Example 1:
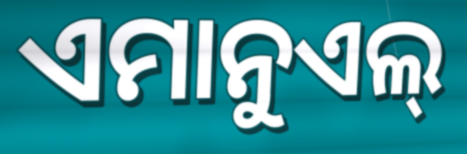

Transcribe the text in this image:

ଏମାନୁଏଲ୍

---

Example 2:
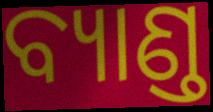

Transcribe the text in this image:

ବ୍ୟାଣ୍ଡ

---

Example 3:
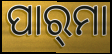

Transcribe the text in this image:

ପାର୍‌ମା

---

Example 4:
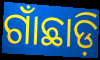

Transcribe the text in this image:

ଗାଁଛାଡ଼ି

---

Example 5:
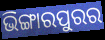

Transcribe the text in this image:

ଭିଙ୍ଗାରପୁରର